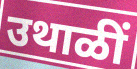
उथाळीं